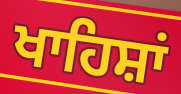
ਖਾਹਿਸ਼ਾਂ